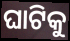
ଘାଟିକୁ